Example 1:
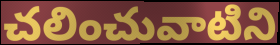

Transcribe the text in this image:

చలించువాటిని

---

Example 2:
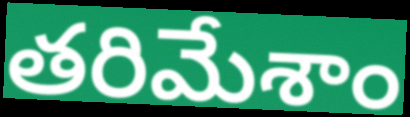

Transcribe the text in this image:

తరిమేశాం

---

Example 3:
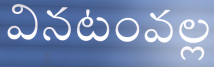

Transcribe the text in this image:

వినటంవల్ల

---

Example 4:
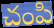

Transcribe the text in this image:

చంపి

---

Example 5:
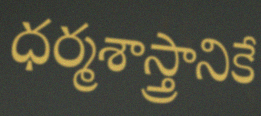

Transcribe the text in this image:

ధర్మశాస్త్రానికే